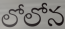
లోలోన